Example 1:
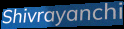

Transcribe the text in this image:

Shivrayanchi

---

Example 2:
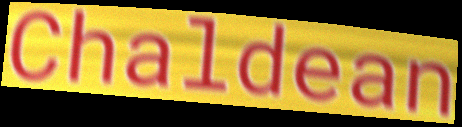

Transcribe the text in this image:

Chaldean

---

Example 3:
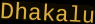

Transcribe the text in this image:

Dhakalu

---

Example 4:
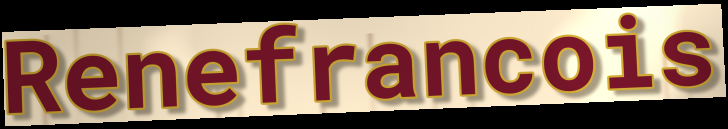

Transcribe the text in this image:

Renefrancois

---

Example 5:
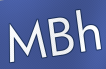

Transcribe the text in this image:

MBh